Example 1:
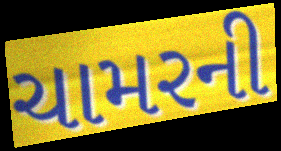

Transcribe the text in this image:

ચામરની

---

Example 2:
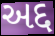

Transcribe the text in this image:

અદ્દ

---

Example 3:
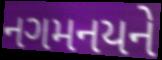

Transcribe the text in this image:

નગમનયને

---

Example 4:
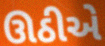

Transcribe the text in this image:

ઊઠીએ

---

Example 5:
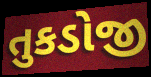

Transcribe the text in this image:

તુકડોજી